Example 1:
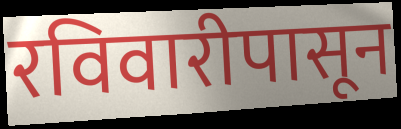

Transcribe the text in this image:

रविवारीपासून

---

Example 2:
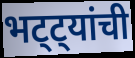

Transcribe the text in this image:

भट्ट्यांची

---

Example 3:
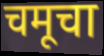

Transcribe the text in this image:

चमूचा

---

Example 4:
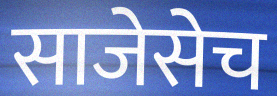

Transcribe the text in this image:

साजेसेच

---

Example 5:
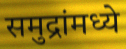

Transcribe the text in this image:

समुद्रांमध्ये